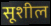
सूशील